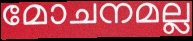
മോചനമല്ല